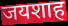
जयशाह